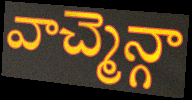
వాచ్మెన్గా